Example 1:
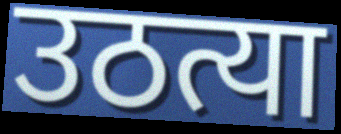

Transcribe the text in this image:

उठत्या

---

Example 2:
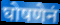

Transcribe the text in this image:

घोषणेनं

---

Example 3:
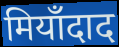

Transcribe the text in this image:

मियाँदाद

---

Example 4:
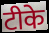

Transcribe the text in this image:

टीके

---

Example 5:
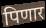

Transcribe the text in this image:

पिणार